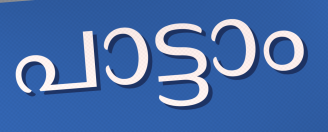
പാട്ടാം